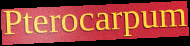
Pterocarpum